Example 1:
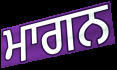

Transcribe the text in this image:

ਮਾਗਨ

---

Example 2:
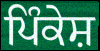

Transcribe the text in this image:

ਪਿੰਕੇਸ਼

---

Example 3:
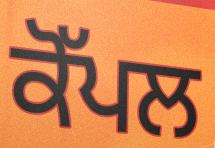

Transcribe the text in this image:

ਕੋੱਪਲ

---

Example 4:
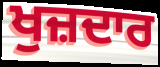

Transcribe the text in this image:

ਖੁਜ਼ਦਾਰ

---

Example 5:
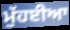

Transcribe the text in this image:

ਮੁੱਹਈਆ